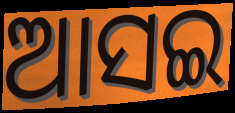
ଆସଇ